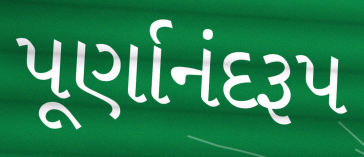
પૂર્ણાનંદરૂપ